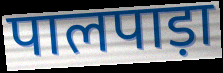
पालपाड़ा